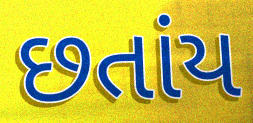
છતાંય